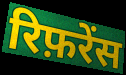
रिफ़रेंस